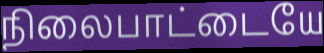
நிலைபாட்டையே